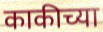
काकीच्या